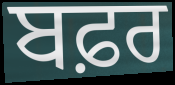
ਬਫ਼ਰ